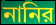
নানির